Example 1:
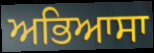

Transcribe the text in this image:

ਅਭਿਆਸਾ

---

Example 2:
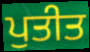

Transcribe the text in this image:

ਪੁਤੀਤ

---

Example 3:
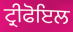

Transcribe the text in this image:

ਟ੍ਰੀਫੋਇਲ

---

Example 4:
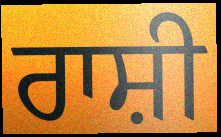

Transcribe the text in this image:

ਰਾਸ਼ੀ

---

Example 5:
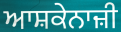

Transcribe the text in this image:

ਆਸ਼ਕੇਨਾਜ਼ੀ